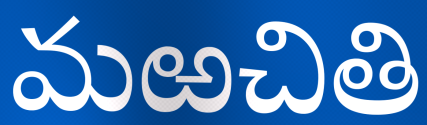
మఱచితి